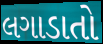
લગાડાતો